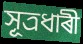
সূত্ৰধাৰী